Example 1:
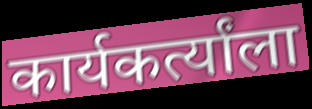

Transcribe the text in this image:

कार्यकर्त्यांला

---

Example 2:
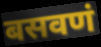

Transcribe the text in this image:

बसवणं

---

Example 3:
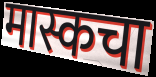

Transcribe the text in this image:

मास्कचा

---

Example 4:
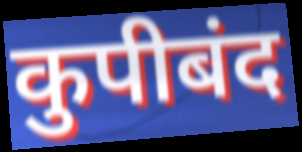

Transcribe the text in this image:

कुपीबंद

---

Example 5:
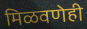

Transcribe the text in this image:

मिळवणेही